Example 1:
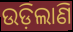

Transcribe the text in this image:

ଉଡ଼ିଲାଣି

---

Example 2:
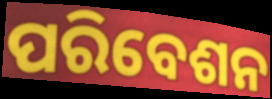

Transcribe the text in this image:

ପରିବେଶନ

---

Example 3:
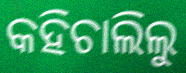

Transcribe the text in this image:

କହିଚାଲିଲୁ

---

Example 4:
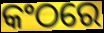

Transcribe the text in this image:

କଂଠରେ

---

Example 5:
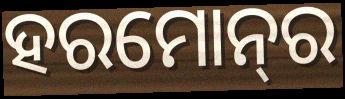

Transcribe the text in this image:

ହରମୋନ୍‍ର